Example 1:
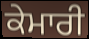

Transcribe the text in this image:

ਕੇਮਾਰੀ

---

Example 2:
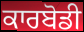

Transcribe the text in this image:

ਕਾਰਬੋਡੀ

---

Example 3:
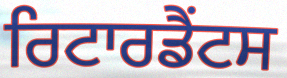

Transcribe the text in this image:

ਰਿਟਾਰਡੈਂਟਸ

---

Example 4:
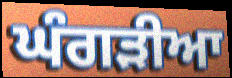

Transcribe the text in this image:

ਘੰਗੜੀਆ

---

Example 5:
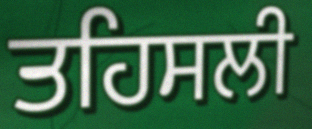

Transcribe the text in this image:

ਤਹਿਸਲੀ